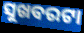
ସୁଖବରଟା